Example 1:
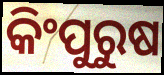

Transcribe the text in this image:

କିଂପୁରୁଷ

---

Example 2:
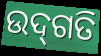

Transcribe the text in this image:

ଉଦ୍‌ଗତି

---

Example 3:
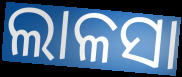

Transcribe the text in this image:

ଲାଳସା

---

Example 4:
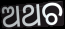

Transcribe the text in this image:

ଅଥଚ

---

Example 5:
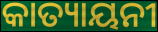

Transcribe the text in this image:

କାତ୍ୟାୟନୀ